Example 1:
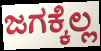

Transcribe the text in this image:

ಜಗಕ್ಕೆಲ್ಲ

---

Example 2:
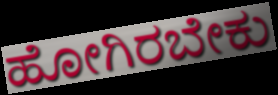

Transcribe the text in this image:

ಹೋಗಿರಬೇಕು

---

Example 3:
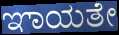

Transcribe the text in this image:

ಞಾಯತೇ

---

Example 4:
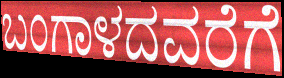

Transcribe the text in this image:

ಬಂಗಾಳದವರೆಗೆ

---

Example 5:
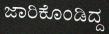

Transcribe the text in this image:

ಜಾರಿಕೊಂಡಿದ್ದ